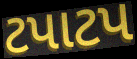
ટપાટપ